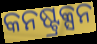
କନଷ୍ଟ୍ରକ୍ସନ